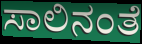
ಸಾಲಿನಂತೆ